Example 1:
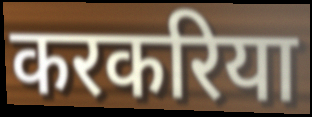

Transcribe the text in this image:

करकरिया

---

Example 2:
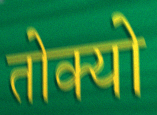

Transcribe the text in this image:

तोक्यो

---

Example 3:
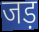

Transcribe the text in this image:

जड़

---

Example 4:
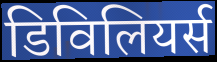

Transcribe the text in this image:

डिविलियर्स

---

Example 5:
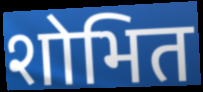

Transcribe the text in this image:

शोभित